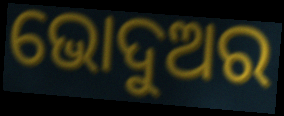
ଭୋଦୁଅର